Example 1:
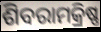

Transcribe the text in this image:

ଶିବରାମକ୍ରିଷ୍ଣ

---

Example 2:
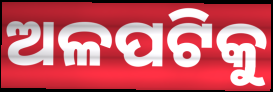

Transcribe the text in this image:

ଅଳପଟିକୁ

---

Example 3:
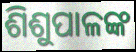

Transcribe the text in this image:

ଶିଶୁପାଳଙ୍କ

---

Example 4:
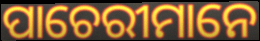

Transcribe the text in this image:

ପାଚେରୀମାନେ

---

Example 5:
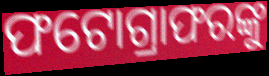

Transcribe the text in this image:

ଫଟୋଗ୍ରାଫରଙ୍କୁ